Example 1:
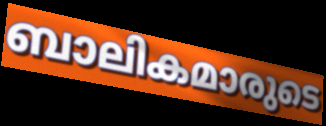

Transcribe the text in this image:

ബാലികമാരുടെ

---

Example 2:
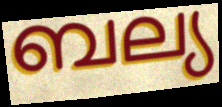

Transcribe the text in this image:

ബല്യ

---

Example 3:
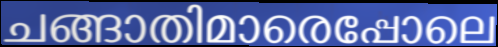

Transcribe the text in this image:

ചങ്ങാതിമാരെപ്പോലെ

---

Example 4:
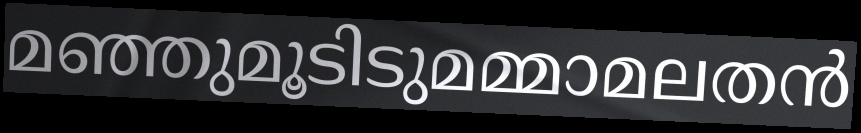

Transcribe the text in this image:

മഞ്ഞുമൂടിടുമമ്മാമലതൻ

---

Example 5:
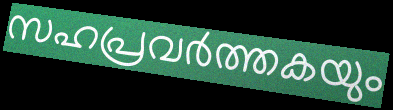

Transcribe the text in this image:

സഹപ്രവർത്തകയും